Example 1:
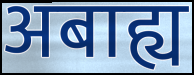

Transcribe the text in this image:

अबाह्य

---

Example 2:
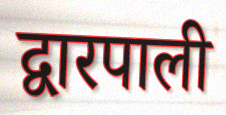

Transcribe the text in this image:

द्वारपाली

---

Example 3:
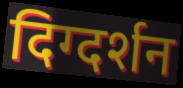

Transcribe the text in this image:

दिग्दर्शन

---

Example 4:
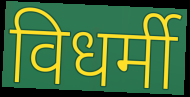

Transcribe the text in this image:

विधर्मी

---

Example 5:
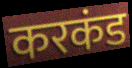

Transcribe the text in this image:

करकंड